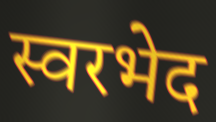
स्वरभेद